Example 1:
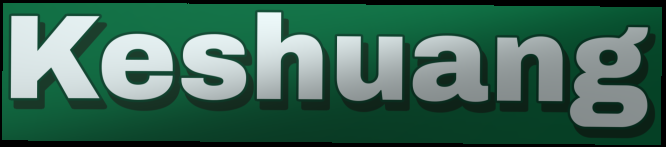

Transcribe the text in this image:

Keshuang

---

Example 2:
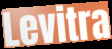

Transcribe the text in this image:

Levitra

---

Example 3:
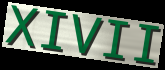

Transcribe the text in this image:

XIVII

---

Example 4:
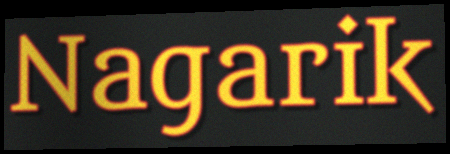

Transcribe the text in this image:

Nagarik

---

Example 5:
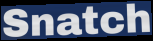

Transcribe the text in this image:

Snatch